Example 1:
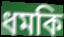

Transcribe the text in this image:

ধমকি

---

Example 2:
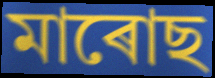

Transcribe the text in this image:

মাৰোছ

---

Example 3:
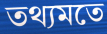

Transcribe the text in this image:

তথ্যমতে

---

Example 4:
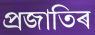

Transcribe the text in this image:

প্ৰজাতিৰ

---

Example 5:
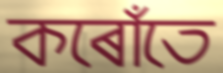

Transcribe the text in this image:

কৰোঁতে